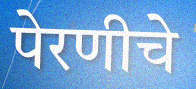
पेरणीचे